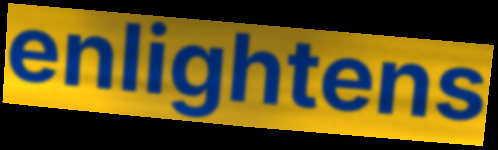
enlightens